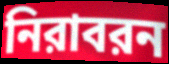
নিরাবরন